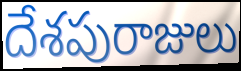
దేశపురాజులు